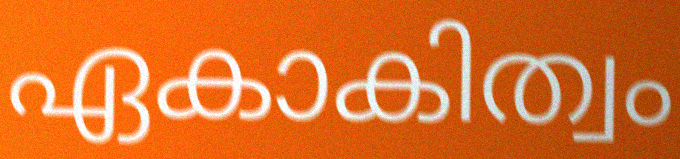
ഏകാകിത്വം